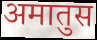
अमातुस